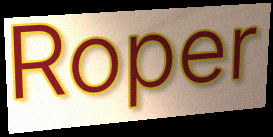
Roper